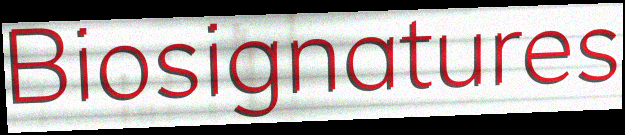
Biosignatures